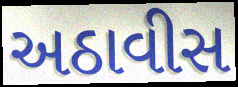
અઠાવીસ